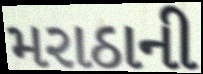
મરાઠાની